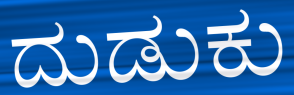
ದುಡುಕು